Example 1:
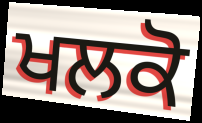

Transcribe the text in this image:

ਖਲਕੋ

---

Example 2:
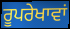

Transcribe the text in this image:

ਰੂਪਰੇਖਾਵਾਂ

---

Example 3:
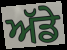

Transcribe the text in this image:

ਅੱਡੇ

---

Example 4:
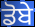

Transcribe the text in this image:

ਡੋਬੇ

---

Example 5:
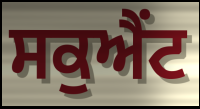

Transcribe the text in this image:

ਸਕੁਐਂਟ